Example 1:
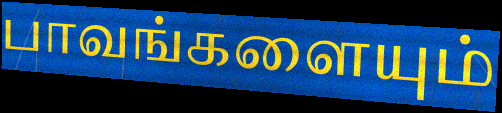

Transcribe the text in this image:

பாவங்களையும்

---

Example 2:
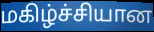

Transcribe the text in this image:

மகிழ்ச்சியான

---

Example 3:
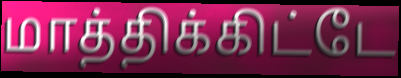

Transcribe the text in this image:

மாத்திக்கிட்டே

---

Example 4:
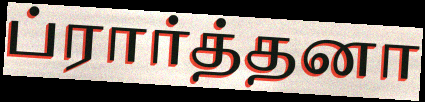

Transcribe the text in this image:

ப்ரார்த்தனா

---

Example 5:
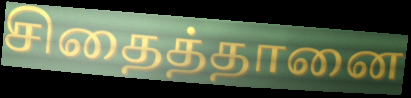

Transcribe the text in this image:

சிதைத்தானை